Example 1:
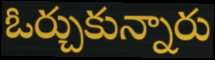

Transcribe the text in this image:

ఓర్చుకున్నారు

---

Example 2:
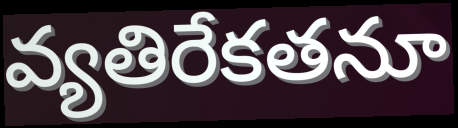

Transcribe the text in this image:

వ్యతిరేకతనూ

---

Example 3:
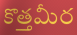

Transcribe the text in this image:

కొత్తమీర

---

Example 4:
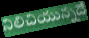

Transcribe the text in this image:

నిలిచియున్నదే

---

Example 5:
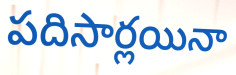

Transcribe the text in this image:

పదిసార్లయినా